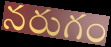
నరుగం